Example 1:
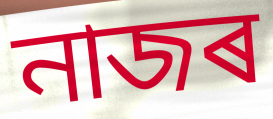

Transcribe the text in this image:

নাজৰ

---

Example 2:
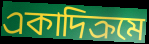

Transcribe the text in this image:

একাদিক্ৰমে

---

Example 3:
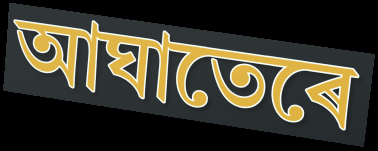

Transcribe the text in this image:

আঘাতেৰে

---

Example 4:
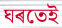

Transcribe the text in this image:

ঘৰতেই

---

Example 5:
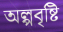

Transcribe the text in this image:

অল্পবৃষ্টি